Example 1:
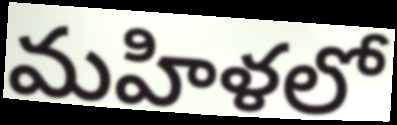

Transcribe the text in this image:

మహిళలో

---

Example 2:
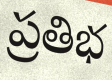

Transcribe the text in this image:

ప్రతిభ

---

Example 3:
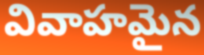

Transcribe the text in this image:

వివాహమైన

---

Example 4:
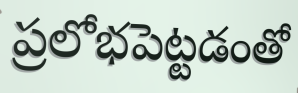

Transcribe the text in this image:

ప్రలోభపెట్టడంతో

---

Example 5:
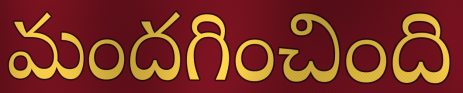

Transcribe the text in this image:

మందగించింది